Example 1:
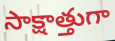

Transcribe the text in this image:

సాక్షాత్తుగా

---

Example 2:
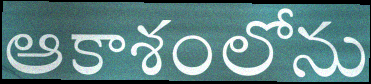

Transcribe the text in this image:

ఆకాశంలోను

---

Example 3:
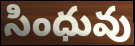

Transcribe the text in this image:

సింధువు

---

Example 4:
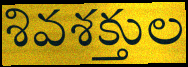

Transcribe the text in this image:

శివశక్తుల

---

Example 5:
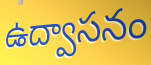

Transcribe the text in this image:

ఉద్వాసనం